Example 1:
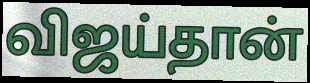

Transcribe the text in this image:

விஜய்தான்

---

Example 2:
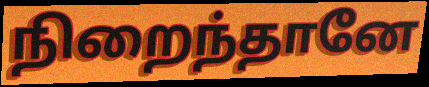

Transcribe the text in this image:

நிறைந்தானே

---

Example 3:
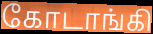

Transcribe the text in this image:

கோடாங்கி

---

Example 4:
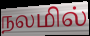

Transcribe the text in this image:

நலமில்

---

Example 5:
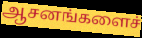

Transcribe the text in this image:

ஆசனங்களைச்